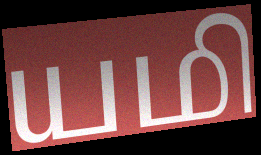
யமி